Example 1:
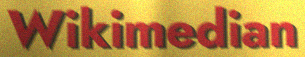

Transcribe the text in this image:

Wikimedian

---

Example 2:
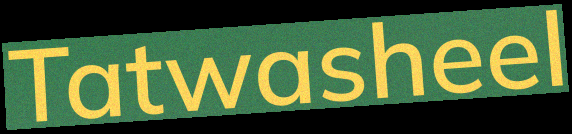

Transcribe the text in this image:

Tatwasheel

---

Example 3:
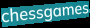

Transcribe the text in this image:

chessgames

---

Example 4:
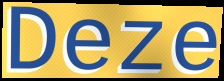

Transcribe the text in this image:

Deze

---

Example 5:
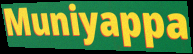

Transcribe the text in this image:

Muniyappa